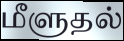
மீளுதல்